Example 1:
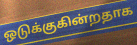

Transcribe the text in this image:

ஒடுக்குகின்றதாக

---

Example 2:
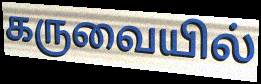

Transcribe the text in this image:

கருவையில்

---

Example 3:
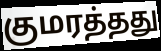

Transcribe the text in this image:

குமரத்தது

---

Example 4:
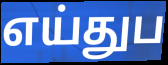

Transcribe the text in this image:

எய்துப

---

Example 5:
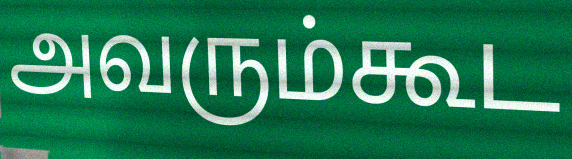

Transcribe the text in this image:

அவரும்கூட